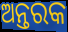
ଅନ୍ତରକ